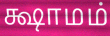
க்ஷாமம்